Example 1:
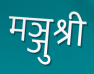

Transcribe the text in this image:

मञ्जुश्री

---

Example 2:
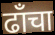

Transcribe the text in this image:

ढाँचा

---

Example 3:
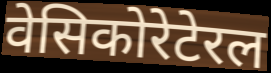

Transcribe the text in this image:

वेसिकोरेटेरल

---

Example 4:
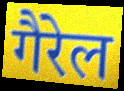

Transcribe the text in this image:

गैरेल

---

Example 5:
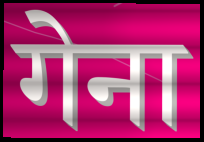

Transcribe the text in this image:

गेना